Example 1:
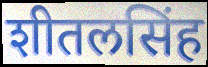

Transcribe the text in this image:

शीतलसिंह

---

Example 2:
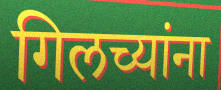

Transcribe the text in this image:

गिलच्यांना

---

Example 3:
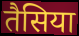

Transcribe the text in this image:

तैसिया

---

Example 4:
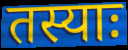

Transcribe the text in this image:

तस्याः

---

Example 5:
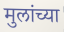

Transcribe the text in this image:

मुलांच्या